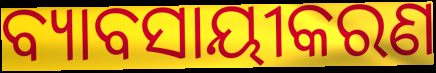
ବ୍ୟାବସାୟୀକରଣ